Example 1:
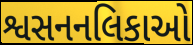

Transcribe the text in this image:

શ્વસનનલિકાઓ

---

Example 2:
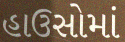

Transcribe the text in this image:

હાઉસોમાં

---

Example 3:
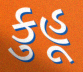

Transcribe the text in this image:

કુહૂ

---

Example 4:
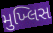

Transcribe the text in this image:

મુખ્લિસ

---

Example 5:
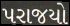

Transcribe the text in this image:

પરાજયો